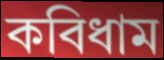
কবিধাম